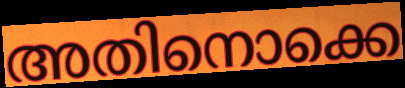
അതിനൊക്കെ